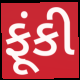
ફૂંકી